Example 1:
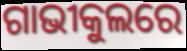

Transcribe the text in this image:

ଗାଭୀକୁଲରେ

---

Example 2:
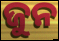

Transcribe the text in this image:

ଜୁନ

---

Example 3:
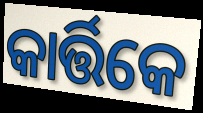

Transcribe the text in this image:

କାର୍ତ୍ତିକେ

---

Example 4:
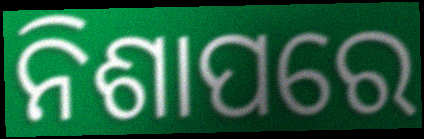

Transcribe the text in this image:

ନିଶାପରେ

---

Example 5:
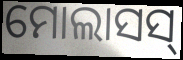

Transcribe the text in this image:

ମୋଲାସସ୍